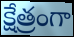
క్షేత్రంగా